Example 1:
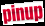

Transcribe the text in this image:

pinup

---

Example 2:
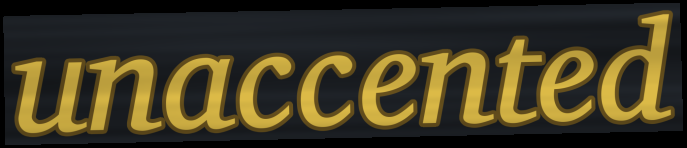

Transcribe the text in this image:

unaccented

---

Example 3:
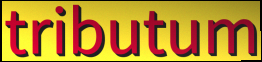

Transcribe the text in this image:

tributum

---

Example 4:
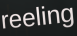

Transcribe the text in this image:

reeling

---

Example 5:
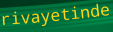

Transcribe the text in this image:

rivayetinde